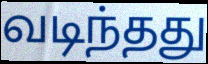
வடிந்தது